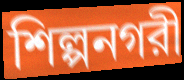
শিল্পনগরী